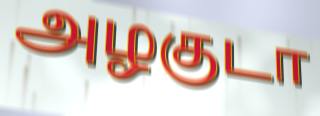
அழகுடா